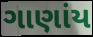
ગાણાંય